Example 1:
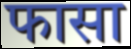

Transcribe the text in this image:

फासा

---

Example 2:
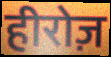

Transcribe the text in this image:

हीरोज़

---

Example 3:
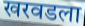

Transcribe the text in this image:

खरवडला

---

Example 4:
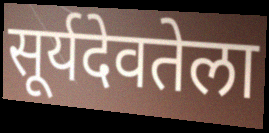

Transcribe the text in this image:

सूर्यदेवतेला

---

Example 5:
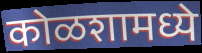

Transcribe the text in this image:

कोळशामध्ये